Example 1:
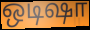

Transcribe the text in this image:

ஒடிஷா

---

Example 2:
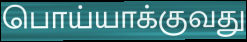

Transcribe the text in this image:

பொய்யாக்குவது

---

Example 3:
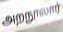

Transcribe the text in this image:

அறநூலார்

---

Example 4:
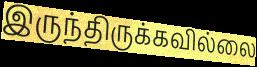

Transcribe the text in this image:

இருந்திருக்கவில்லை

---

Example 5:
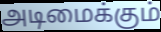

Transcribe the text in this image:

அடிமைக்கும்